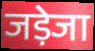
जड़ेजा